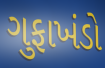
ગુફાખંડો